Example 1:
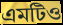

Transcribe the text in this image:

এমটিও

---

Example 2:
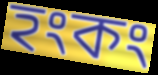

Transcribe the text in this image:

হংকং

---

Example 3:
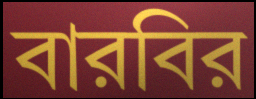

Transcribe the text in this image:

বারবির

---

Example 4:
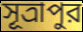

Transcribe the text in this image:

সূত্রাপুর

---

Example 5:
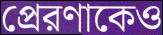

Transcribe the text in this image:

প্রেরণাকেও